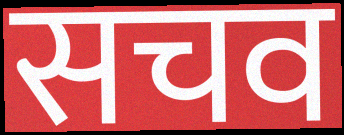
सचव